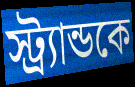
স্ট্র্যান্ডকে